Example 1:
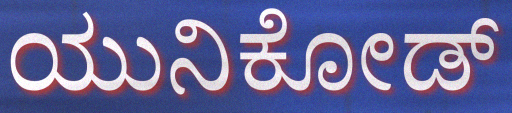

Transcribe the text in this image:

ಯುನಿಕೋಡ್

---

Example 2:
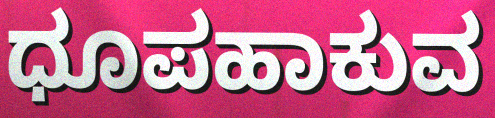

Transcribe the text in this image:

ಧೂಪಹಾಕುವ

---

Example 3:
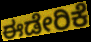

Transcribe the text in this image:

ಈಡೇರಿಕೆ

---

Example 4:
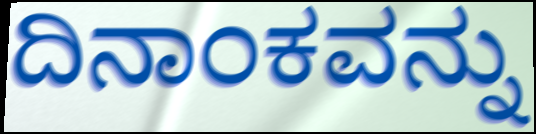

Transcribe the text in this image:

ದಿನಾಂಕವನ್ನು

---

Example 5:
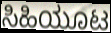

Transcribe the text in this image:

ಸಿಹಿಯೂಟ